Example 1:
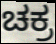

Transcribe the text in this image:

ಚಕ್ರ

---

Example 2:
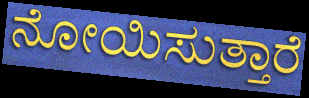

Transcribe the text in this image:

ನೋಯಿಸುತ್ತಾರೆ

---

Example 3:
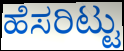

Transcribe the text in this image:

ಹೆಸರಿಟ್ಟು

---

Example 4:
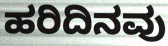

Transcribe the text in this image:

ಹರಿದಿನವು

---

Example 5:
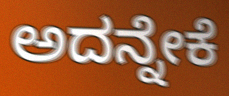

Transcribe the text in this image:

ಅದನ್ನೇಕೆ